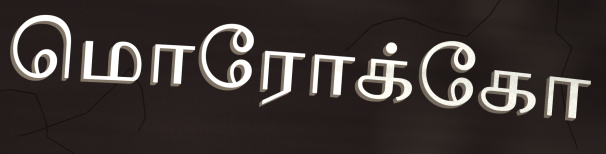
மொரோக்கோ